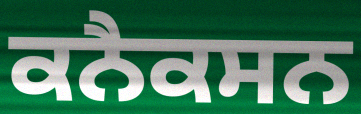
ਕਨੈਕਸਨ